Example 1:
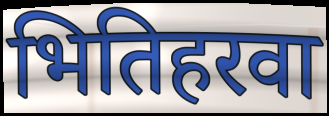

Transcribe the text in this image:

भितिहरवा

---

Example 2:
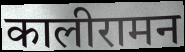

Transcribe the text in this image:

कालीरामन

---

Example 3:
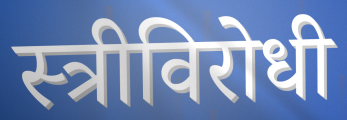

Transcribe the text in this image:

स्त्रीविरोधी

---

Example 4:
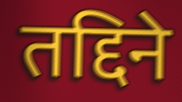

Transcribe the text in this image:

तद्दिने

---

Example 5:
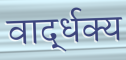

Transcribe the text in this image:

वार्द्धक्य